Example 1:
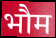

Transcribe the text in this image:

भौम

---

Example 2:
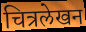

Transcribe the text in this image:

चित्रलेखन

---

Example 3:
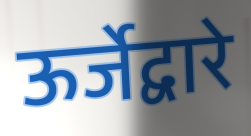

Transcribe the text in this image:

ऊर्जेद्वारे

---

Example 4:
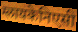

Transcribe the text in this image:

ग्लायकेनिएसी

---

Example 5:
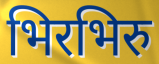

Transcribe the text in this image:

भिरभिरु